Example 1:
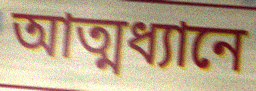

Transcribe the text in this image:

আত্মধ্যানে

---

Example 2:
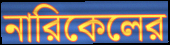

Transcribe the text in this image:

নারিকেলের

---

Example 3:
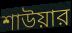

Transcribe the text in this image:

শাউয়ার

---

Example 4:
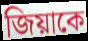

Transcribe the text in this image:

জিয়াকে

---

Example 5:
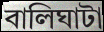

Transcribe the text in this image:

বালিঘাটা